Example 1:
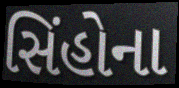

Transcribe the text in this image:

સિંહોના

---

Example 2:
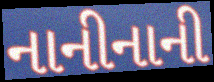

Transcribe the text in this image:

નાનીનાની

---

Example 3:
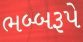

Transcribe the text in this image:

ભબ્બરૂપે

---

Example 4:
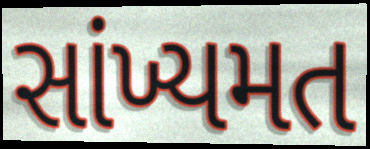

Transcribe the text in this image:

સાંખ્યમત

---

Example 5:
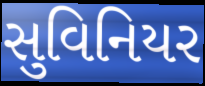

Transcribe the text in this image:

સુવિનિયર